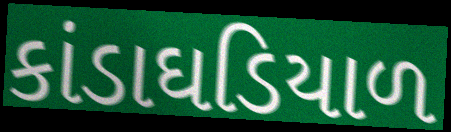
કાંડાઘડિયાળ